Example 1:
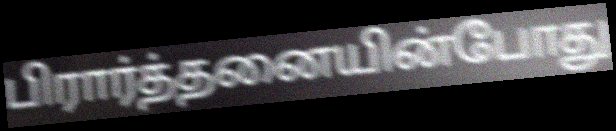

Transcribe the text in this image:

பிரார்த்தனையின்போது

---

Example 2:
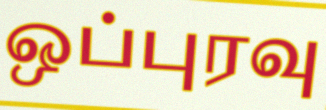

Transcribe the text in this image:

ஒப்புரவு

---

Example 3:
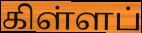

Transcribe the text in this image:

கிள்ளப்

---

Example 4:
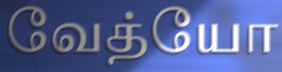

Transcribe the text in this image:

வேத்யோ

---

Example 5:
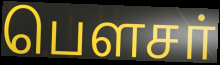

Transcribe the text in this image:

பௌசர்